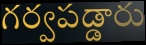
గర్వపడ్డారు